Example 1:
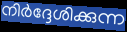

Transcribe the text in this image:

നിർദ്ദേശിക്കുന്ന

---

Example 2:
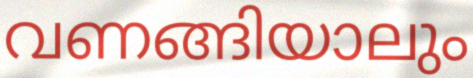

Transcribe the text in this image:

വണങ്ങിയാലും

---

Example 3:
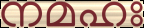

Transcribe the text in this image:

നമഹഃ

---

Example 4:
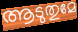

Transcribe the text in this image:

ആടുതുമേ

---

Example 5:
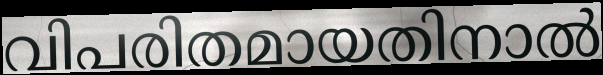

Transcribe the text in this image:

വിപരിതമായതിനാൽ